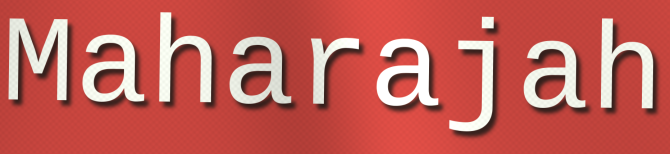
Maharajah